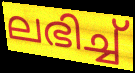
ലഭിച്ച്